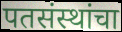
पतसंस्थांचा